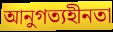
আনুগত্যহীনতা